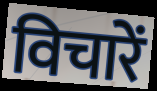
विचारें